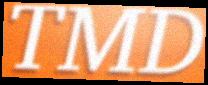
TMD